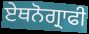
ਏਥਨੋਗ੍ਰਾਫੀ